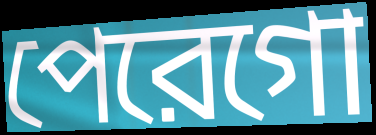
পেরেগো